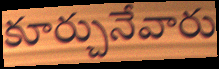
కూర్చునేవారు